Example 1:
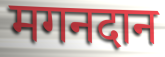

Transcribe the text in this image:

मगनदान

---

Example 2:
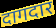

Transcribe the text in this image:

दागदार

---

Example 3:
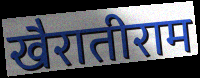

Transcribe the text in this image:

खैरातीराम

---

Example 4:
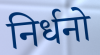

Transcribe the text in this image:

निर्धनो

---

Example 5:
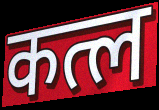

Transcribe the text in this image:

कत्ल